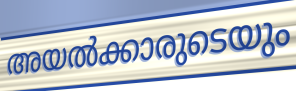
അയൽക്കാരുടെയും